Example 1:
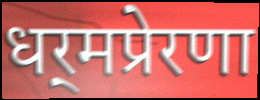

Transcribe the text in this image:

धर्मप्रेरणा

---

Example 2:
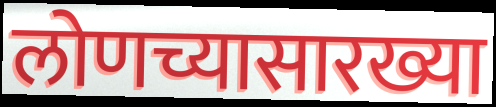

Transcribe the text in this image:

लोणच्यासारख्या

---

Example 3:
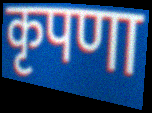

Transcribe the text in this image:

कृपणा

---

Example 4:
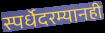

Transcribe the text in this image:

स्पर्धेदरम्यानही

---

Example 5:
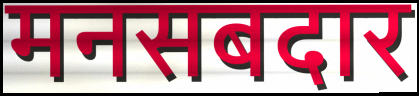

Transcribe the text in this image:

मनसबदार